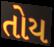
તોય